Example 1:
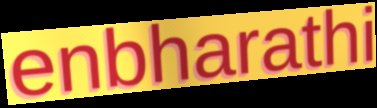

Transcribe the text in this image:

enbharathi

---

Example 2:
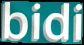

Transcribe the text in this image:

bidi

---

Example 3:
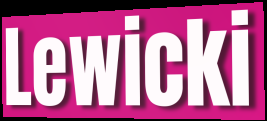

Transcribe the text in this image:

Lewicki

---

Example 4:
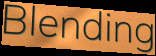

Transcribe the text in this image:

Blending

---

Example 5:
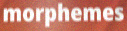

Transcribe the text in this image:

morphemes